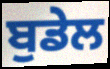
ਬੁਡੇਲ